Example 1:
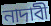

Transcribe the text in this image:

নাদাবী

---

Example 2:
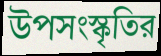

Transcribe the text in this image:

উপসংস্কৃতির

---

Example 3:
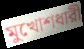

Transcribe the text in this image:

মুখোশধারী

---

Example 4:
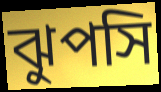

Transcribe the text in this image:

ঝুপসি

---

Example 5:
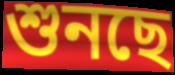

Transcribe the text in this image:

শুনছে